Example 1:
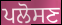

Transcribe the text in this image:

ਪਲੋਸਣ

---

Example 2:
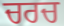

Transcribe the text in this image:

ਚਰਚ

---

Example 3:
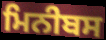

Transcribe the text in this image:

ਮਿਨੀਬਸ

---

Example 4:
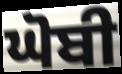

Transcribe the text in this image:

ਘੋਬੀ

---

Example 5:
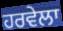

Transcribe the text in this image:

ਹਰਵੇਲਾ